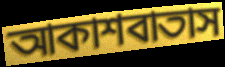
আকাশবাতাস